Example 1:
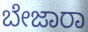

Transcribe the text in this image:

ಬೇಜಾರಾ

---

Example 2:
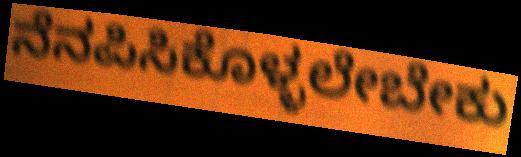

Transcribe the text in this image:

ನೆನಪಿಸಿಕೊಳ್ಳಲೇಬೇಕು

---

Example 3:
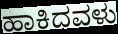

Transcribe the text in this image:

ಹಾಕಿದವಳು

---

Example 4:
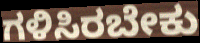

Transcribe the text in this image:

ಗಳಿಸಿರಬೇಕು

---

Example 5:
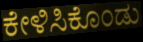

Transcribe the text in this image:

ಕೇಳಿಸಿಕೊಂಡು